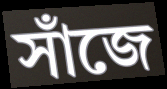
সাঁজে